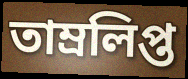
তাম্রলিপ্ত